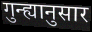
गुन्ह्यानुसार